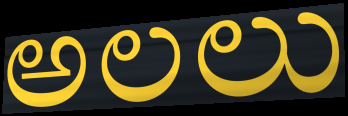
అలలు